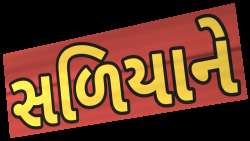
સળિયાને